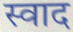
स्‍वाद